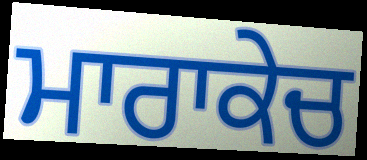
ਮਾਰਾਕੇਚ